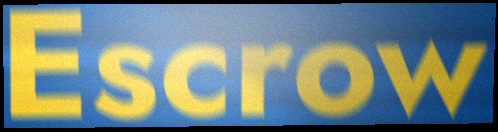
Escrow